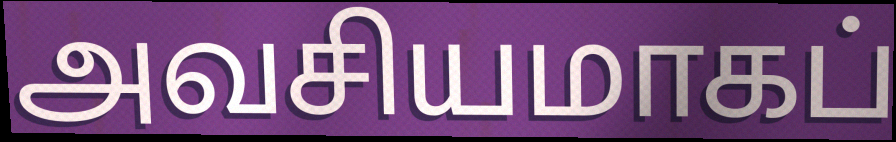
அவசியமாகப்